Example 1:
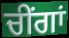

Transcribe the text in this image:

ਚੀਂਗਾਂ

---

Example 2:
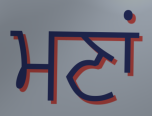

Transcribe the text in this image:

ਮਣਾਂ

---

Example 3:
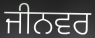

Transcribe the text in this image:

ਜੀਨਵਰ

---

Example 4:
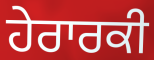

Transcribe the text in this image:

ਹੇਰਾਰਕੀ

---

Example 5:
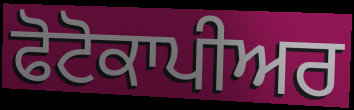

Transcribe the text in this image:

ਫੋਟੋਕਾਪੀਅਰ